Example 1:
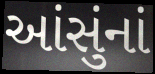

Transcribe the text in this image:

આંસુંનાં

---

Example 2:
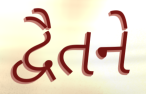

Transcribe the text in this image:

દ્વૈતને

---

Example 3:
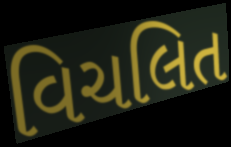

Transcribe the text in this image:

વિચલિત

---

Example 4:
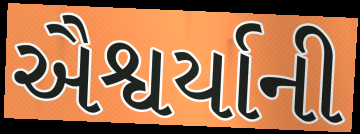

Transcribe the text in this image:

ઐશ્વર્યાની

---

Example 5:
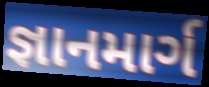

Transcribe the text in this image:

જ્ઞાનમાર્ગ